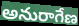
అనురాగేణ